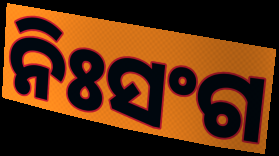
ନିଃସଂଗ